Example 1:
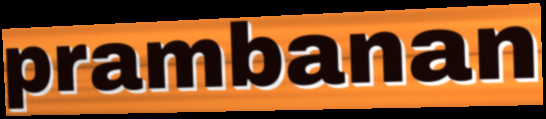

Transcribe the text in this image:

prambanan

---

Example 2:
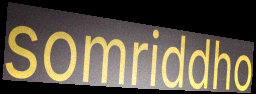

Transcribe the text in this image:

somriddho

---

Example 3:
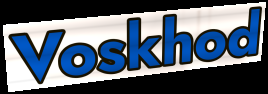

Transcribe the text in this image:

Voskhod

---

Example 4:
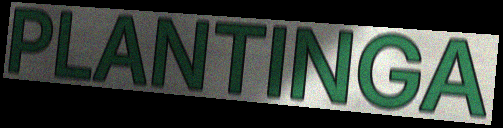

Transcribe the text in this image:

PLANTINGA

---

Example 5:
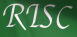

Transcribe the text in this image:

RISC